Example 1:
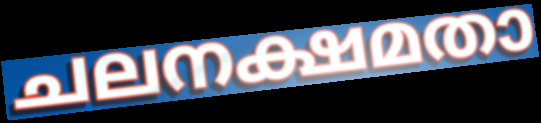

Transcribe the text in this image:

ചലനക്ഷമതാ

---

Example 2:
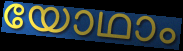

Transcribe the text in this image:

യോഥാം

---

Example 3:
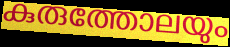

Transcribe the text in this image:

കുരുത്തോലയും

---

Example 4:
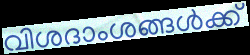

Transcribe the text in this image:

വിശദാംശങ്ങൾക്ക്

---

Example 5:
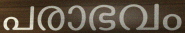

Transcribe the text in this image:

പരാഭവം